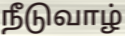
நீடுவாழ்